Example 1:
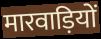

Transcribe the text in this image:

मारवाड़ियों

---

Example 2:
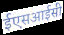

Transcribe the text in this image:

ईएसआईसी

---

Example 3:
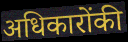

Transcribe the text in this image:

अधिकारोंकी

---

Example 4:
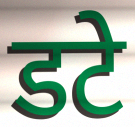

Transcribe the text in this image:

डटे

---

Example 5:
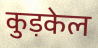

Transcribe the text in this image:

कुड़केल